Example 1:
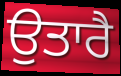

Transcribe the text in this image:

ਉਤਾਰੈ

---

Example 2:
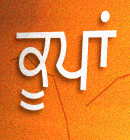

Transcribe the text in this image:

ਕੂਪਾਂ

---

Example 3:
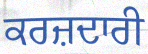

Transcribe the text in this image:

ਕਰਜ਼ਦਾਰੀ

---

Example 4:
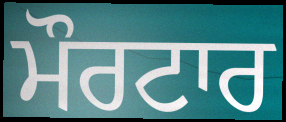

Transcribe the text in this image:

ਮੌਰਟਾਰ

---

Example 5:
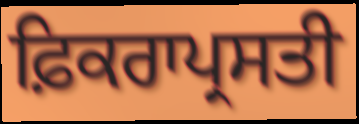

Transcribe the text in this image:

ਫ਼ਿਕਰਾਪ੍ਰਸਤੀ